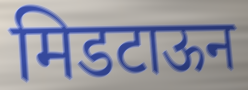
मिडटाऊन